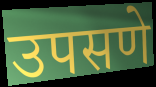
उपसणे